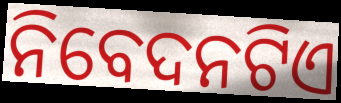
ନିବେଦନଟିଏ